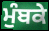
ਮੁੰਬਕੇ